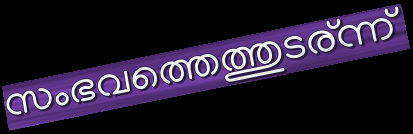
സംഭവത്തെത്തുടര്ന്ന്